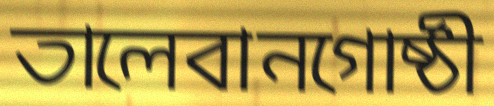
তালেবানগোষ্ঠী